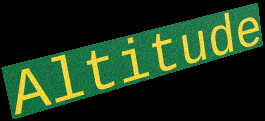
Altitude